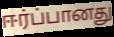
ஈர்ப்பானது